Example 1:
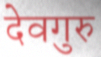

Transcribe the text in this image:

देवगुरु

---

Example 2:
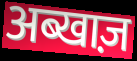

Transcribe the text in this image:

अब्खाज़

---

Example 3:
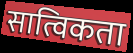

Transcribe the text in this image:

सात्विकता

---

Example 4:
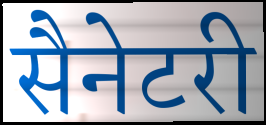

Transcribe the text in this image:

सैनेटरी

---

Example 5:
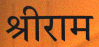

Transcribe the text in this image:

श्रीराम